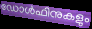
ഡോൾഫിനുകളും